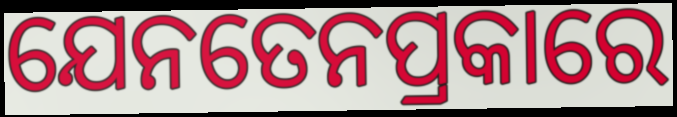
ଯେନତେନପ୍ରକାରେ